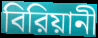
বিরিয়ানী